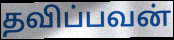
தவிப்பவன்